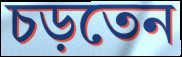
চড়তেন